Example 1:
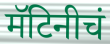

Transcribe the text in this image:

मॅटिनीचं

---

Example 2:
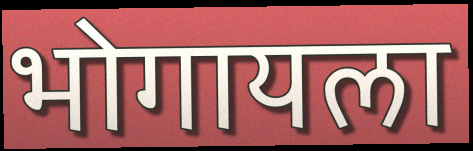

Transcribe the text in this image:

भोगायला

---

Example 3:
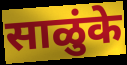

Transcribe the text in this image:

साळुंके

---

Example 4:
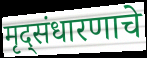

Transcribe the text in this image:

मृद्संधारणाचे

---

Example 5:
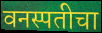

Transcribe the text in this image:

वनस्पतीचा